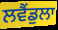
ਲਵੈਂਡੁਲਾ